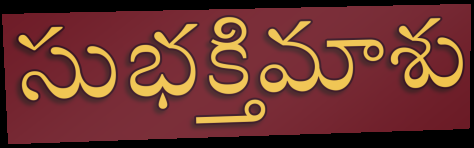
సుభక్తిమాశు